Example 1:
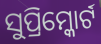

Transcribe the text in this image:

ସୁପ୍ରିମ୍କୋର୍ଟ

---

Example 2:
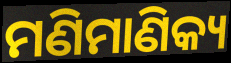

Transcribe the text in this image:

ମଣିମାଣିକ୍ୟ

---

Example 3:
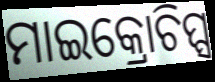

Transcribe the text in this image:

ମାଇକ୍ରୋଚିପ୍ସ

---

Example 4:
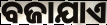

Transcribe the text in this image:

ବଜାଯାଏ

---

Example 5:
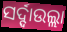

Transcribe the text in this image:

ସର୍ଦ୍ଦାଉଲ୍ଲା